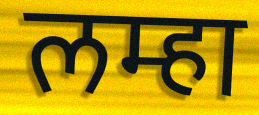
लम्हा